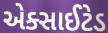
એક્સાઈટેડ